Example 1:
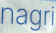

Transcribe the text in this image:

nagri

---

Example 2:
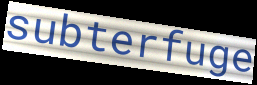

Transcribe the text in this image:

subterfuge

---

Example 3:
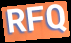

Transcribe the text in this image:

RFQ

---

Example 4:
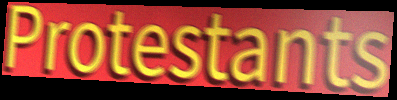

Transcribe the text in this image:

Protestants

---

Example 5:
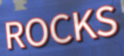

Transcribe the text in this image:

ROCKS